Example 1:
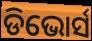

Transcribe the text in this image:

ଡିଭୋର୍ସ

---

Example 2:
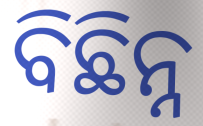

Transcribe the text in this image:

ବିଛିନ୍ନ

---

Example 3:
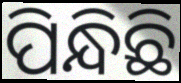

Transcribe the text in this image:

ପିନ୍ଧିଛି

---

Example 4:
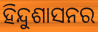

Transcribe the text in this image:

ହିନ୍ଦୁଶାସନର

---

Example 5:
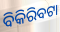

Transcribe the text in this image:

ବିକିରିବଟା